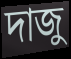
দাজু